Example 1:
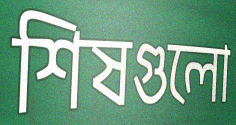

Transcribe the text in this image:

শিষগুলো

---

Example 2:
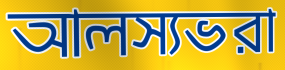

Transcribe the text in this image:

আলস্যভরা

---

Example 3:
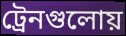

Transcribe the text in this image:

ট্রেনগুলোয়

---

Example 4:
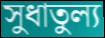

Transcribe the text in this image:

সুধাতুল্য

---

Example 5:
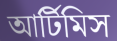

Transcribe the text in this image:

আর্টিমিস